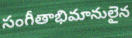
సంగీతాభిమానులైన